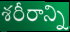
శరీరాన్ని